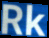
Rk